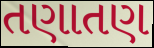
તણાતણ